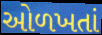
ઓળખતાં